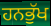
ਹਨਭੁੱਖ